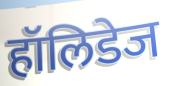
हॉलिडेज